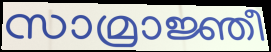
സാമ്രാജ്ഞീ